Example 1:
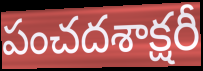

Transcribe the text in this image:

పంచదశాక్షరీ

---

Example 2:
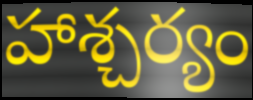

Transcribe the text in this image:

హాశ్చర్యం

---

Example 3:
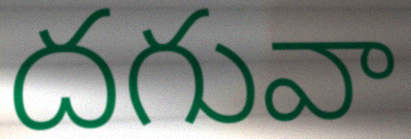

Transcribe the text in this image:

దగువా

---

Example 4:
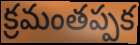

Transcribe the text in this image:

క్రమంతప్పక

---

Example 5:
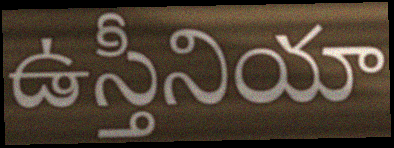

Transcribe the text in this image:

ఉస్తీనియా